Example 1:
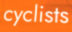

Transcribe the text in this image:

cyclists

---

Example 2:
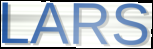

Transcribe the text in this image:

LARS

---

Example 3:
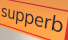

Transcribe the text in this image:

supperb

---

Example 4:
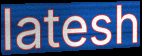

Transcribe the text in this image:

latesh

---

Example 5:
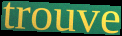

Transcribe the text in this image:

trouve